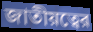
জাতীয়ত্বের